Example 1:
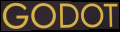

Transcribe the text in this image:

GODOT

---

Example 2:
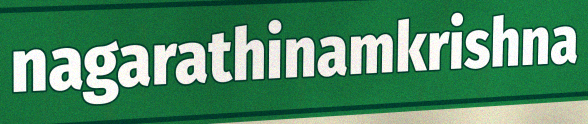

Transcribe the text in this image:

nagarathinamkrishna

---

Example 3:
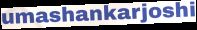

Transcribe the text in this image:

umashankarjoshi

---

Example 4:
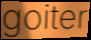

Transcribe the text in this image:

goiter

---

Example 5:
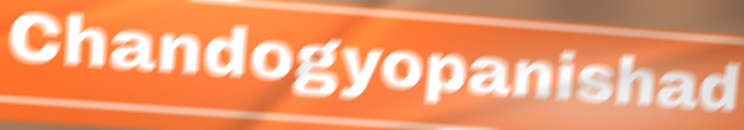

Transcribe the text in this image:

Chandogyopanishad